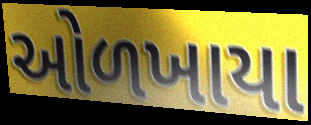
ઓળખાયા